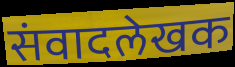
संवादलेखक